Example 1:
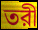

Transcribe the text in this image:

তরী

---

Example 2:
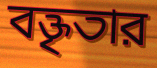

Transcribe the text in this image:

বক্তৃতার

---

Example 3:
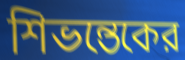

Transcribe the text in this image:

শিভন্তেকের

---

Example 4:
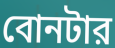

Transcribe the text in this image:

বোনটার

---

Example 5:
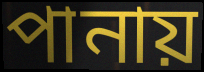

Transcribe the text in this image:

পানায়